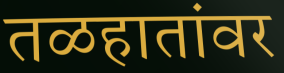
तळहातांवर